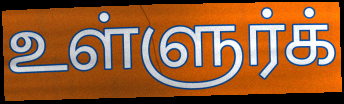
உள்ளுர்க்